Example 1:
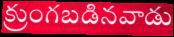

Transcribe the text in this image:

క్రుంగబడినవాడు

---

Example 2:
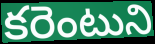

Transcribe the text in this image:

కరెంటుని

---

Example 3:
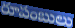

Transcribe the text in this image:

రూపంబులు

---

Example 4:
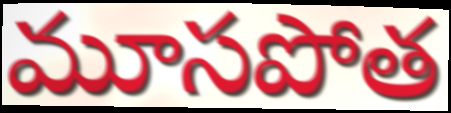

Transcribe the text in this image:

మూసపోత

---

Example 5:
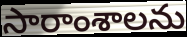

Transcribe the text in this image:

సారాంశాలను